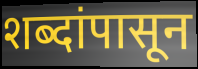
शब्दांपासून